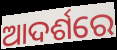
ଆଦର୍ଶରେ